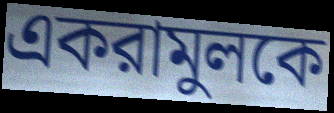
একরামুলকে